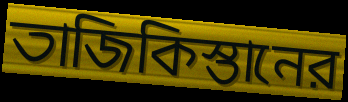
তাজিকিস্তানের